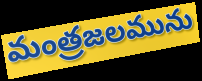
మంత్రజలమును